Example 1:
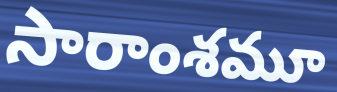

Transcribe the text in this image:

సారాంశమూ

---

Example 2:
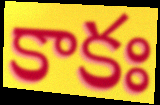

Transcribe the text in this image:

కాకః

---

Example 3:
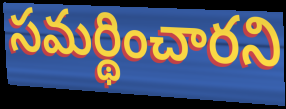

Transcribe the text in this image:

సమర్థించారని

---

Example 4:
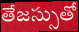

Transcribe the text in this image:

తేజస్సుతో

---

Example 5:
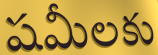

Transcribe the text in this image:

షమీలకు